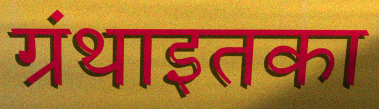
ग्रंथाइतका